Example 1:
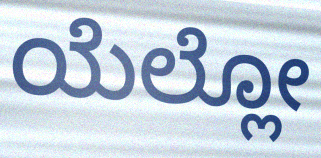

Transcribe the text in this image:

ಯೆಲ್ಲೋ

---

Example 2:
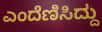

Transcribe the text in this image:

ಎಂದೆಣಿಸಿದ್ದು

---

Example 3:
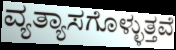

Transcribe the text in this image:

ವ್ಯತ್ಯಾಸಗೊಳ್ಳುತ್ತವೆ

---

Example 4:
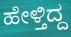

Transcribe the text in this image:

ಹೇಳ್ತಿದ್ದ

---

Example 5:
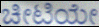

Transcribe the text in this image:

ಚೀಟಿಯೇ